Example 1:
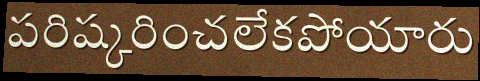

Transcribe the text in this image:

పరిష్కరించలేకపోయారు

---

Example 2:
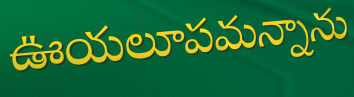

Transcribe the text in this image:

ఊయలూపమన్నాను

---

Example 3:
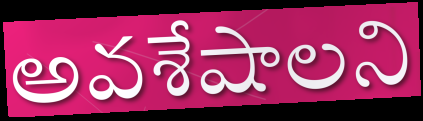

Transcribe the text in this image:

అవశేషాలని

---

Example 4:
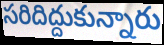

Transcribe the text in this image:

సరిదిద్దుకున్నారు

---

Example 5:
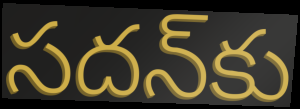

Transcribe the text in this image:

సదన్‌కు